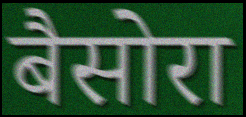
बैसोरा